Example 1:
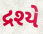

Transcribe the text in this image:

દ્રશ્યે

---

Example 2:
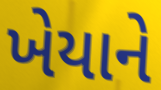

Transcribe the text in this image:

ખેયાને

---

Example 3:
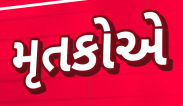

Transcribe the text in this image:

મૃતકોએ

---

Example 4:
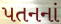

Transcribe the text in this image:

પતનનાં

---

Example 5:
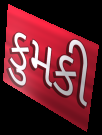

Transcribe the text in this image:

કુમકી